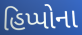
હિપ્પોના